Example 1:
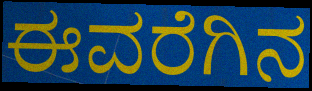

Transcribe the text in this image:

ಈವರೆಗಿನ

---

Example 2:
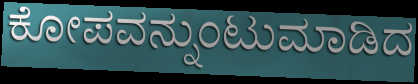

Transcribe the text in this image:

ಕೋಪವನ್ನುಂಟುಮಾಡಿದ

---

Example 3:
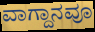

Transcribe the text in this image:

ವಾಗ್ದಾನವೂ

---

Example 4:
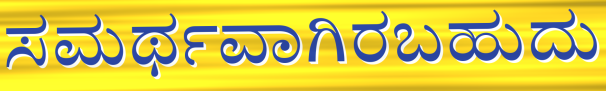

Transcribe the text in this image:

ಸಮರ್ಥವಾಗಿರಬಹುದು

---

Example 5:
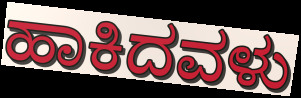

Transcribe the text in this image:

ಹಾಕಿದವಳು